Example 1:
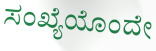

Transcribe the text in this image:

ಸಂಖ್ಯೆಯೊಂದೇ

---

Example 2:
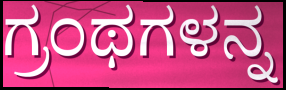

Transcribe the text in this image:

ಗ್ರಂಥಗಳನ್ನ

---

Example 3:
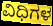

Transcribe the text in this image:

ವಿಧಿಗಳ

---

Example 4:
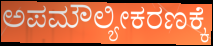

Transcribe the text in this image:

ಅಪಮೌಲ್ಯೀಕರಣಕ್ಕೆ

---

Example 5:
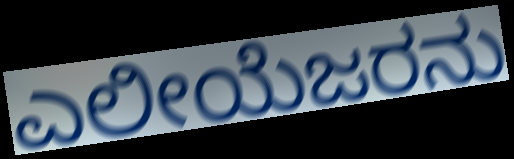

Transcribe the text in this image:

ಎಲೀಯೆಜರನು